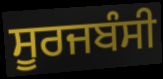
ਸੂਰਜਬੰਸੀ